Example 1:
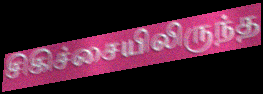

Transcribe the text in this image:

சிகிச்சையிலிருந்த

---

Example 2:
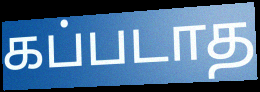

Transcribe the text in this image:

கப்படாத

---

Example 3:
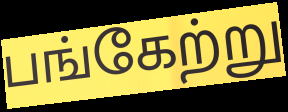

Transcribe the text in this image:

பங்கேற்று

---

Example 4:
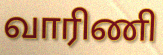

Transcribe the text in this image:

வாரிணி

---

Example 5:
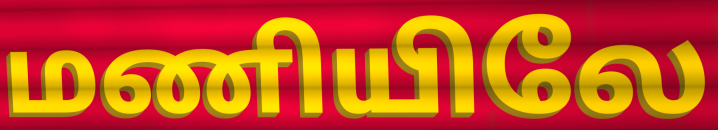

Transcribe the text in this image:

மணியிலே